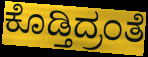
ಕೊಡ್ತಿದ್ರಂತೆ